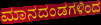
ಮಾನದಂಡಗಳಿಂದ